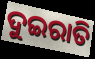
ଦୁଇରାତି